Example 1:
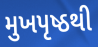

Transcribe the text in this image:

મુખપૃષ્ઠથી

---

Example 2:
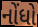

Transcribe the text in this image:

નોંધો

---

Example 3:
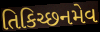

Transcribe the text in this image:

તિકિચ્છનમેવ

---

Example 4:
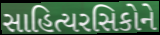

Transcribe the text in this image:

સાહિત્યરસિકોને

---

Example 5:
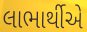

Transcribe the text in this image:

લાભાર્થીએ